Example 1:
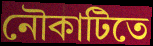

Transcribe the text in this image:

নৌকাটিতে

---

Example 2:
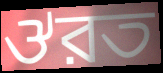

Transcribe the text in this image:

ঔরত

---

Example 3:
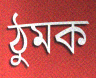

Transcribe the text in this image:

ঠুমক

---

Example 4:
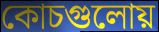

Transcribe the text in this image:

কোচগুলোয়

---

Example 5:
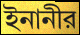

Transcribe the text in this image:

ইনানীর